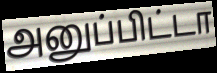
அனுப்பிட்டா